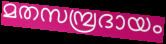
മതസമ്പ്രദായം